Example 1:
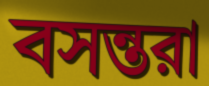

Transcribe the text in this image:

বসন্তরা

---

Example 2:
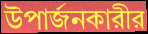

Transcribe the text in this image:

উপার্জনকারীর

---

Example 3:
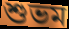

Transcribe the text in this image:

শুভম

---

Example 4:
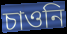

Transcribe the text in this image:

চাওনি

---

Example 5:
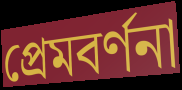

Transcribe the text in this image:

প্রেমবর্ণনা